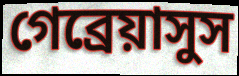
গেব্রেয়াসুস